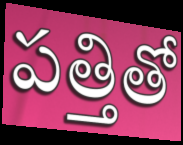
పత్తితో